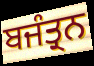
ਬਜੰਤ੍ਰਨ